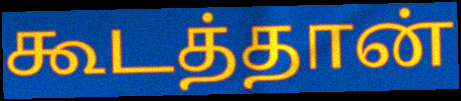
கூடத்தான்